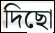
দিছো